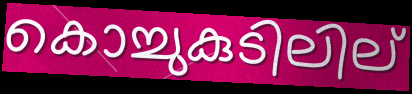
കൊച്ചുകുടിലില്